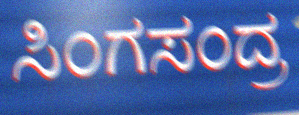
ಸಿಂಗಸಂದ್ರ